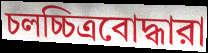
চলচ্চিত্রবোদ্ধারা